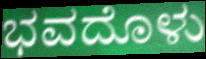
ಭವದೊಳು